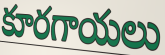
కూరగాయలు